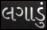
લગાડું